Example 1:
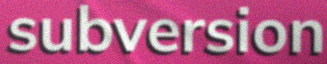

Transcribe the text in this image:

subversion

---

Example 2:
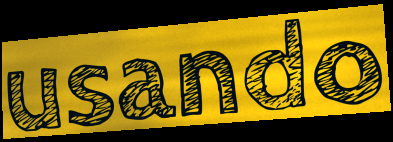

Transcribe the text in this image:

usando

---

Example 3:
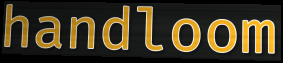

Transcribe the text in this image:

handloom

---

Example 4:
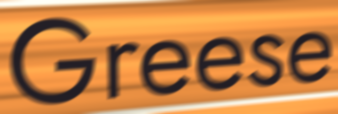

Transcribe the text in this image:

Greese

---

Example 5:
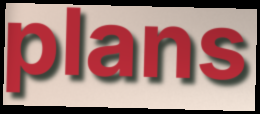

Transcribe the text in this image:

plans